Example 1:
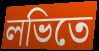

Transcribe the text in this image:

লভিতে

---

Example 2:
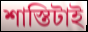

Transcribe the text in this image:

শাস্তিটাই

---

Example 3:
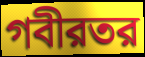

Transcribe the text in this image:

গবীরতর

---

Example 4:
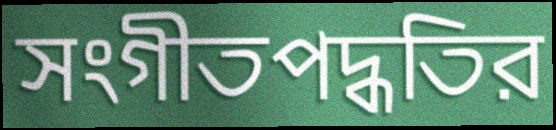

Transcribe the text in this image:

সংগীতপদ্ধতির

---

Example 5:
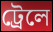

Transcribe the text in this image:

ট্রেলে